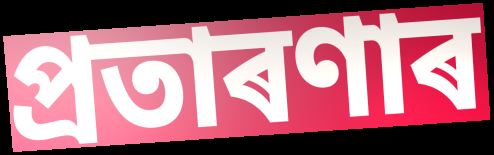
প্ৰতাৰণাৰ